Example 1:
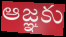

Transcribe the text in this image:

ఆజ్ఞకు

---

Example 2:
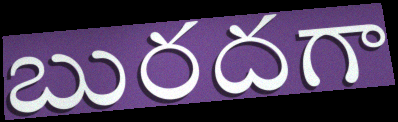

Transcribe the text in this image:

బురదగా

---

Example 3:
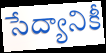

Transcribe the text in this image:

సేద్యానికీ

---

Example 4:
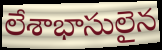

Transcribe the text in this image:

లేశాభాసులైన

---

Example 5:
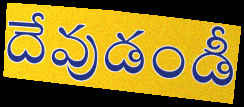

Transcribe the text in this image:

దేవుడండీ